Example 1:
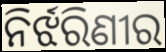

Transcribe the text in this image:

ନିର୍ଝରିଣୀର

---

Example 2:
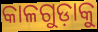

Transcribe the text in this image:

କାଳଗୁଡ଼ାକୁ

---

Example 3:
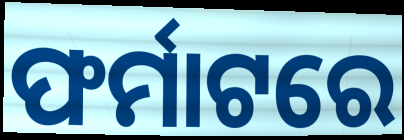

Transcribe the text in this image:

ଫର୍ମାଟରେ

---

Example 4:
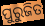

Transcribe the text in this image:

ପୁରୁଜିତ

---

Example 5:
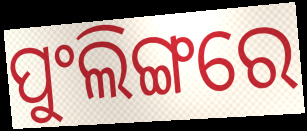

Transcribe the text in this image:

ପୁଂଲିଙ୍ଗରେ